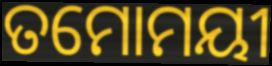
ତମୋମୟୀ